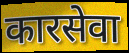
कारसेवा